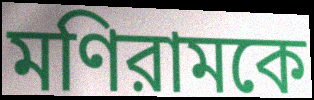
মণিরামকে